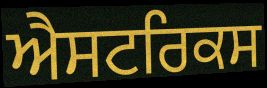
ਐਸਟਰਿਕਸ